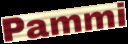
Pammi